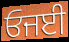
ਓਜਈ